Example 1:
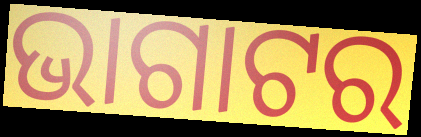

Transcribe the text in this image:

ଭାଗାଟର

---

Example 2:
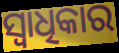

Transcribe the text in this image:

ସ୍ବାଧିକାର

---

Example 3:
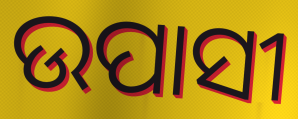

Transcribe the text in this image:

ଉପାସୀ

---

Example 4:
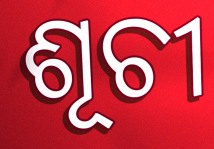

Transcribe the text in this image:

ଶୂଚୀ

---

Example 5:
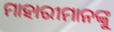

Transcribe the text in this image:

ମାହାରୀମାନଙ୍କୁ